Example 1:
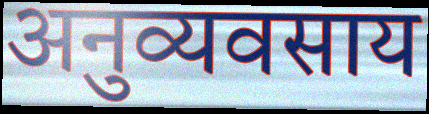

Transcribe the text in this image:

अनुव्यवसाय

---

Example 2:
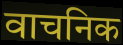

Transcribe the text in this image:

वाचनिक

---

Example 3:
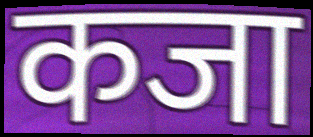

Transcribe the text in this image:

कजा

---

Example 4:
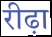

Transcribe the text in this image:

रीढ़ा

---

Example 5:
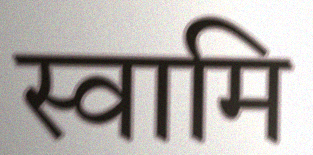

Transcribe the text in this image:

स्वामि